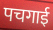
पचगाई